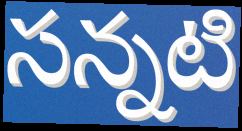
సన్నటి